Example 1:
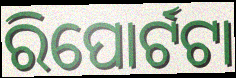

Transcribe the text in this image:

ରିପୋର୍ଟଟା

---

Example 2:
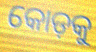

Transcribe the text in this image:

କୋଡ଼କୁ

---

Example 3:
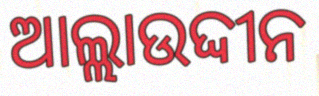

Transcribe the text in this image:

ଆଲ୍ଲାଉଦ୍ଦୀନ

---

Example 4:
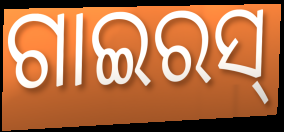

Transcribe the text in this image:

ଗାଇରସ୍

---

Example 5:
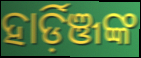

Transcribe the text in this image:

ହାର୍ଡ଼ିଞ୍ଜଙ୍କ